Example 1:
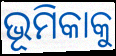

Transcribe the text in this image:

ଭୂମିକାକୁ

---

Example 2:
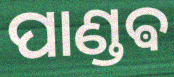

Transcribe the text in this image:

ପାଣ୍ଡଵ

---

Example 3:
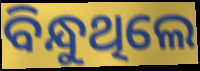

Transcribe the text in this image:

ବିନ୍ଧୁଥିଲେ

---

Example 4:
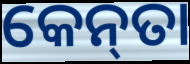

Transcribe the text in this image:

କେନ୍‌ତା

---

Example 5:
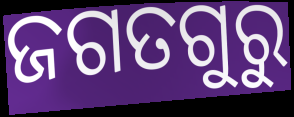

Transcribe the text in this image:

ଜଗତଗୁରୁ